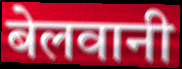
बेलवानी